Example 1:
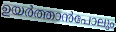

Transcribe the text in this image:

ഉയർത്താൻപോലും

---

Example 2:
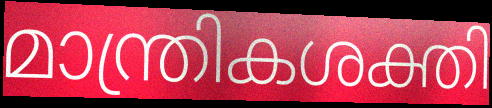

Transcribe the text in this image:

മാന്ത്രികശക്തി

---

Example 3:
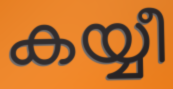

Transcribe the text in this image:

കയ്യീ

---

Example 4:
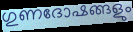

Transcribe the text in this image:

ഗുണദോഷങ്ങളും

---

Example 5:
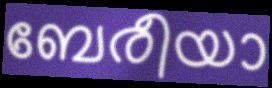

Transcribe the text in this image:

ബേരീയാ